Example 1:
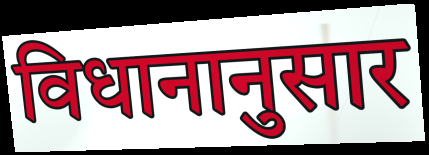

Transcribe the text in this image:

विधानानुसार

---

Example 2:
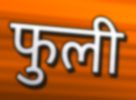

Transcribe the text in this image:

फुली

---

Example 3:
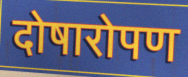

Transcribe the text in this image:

दोषारोपण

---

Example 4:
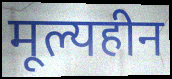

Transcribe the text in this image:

मूल्यहीन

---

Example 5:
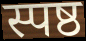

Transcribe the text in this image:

स्पष्ठ